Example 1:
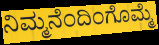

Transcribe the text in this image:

ನಿಮ್ಮನೆಂದಿಂಗೊಮ್ಮೆ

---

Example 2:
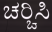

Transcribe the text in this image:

ಚರ‍್ಚಿಸಿ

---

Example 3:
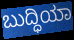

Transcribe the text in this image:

ಬುದ್ಧಿಯಾ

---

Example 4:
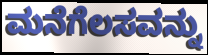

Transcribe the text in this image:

ಮನೆಗೆಲಸವನ್ನು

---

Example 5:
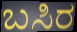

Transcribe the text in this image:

ಬಸಿರ